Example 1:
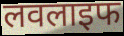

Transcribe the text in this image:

लवलाइफ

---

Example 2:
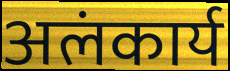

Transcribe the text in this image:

अलंकार्य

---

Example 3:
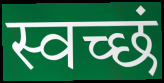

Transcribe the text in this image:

स्वच्छं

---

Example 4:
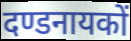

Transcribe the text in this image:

दण्डनायकों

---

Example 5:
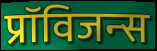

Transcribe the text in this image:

प्रॉविजन्स